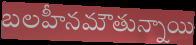
బలహీనమౌతున్నాయి